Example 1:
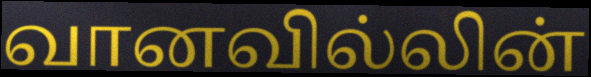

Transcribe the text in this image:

வானவில்லின்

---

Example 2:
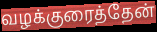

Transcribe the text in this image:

வழக்குரைத்தேன்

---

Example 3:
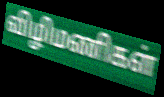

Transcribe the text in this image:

விழிமணிகள்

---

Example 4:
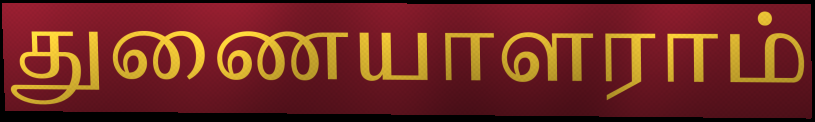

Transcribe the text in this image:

துணையாளராம்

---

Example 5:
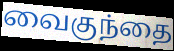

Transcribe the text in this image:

வைகுந்தை